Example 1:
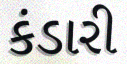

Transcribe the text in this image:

કંડારી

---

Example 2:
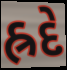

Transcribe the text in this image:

હ્રદે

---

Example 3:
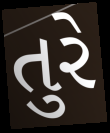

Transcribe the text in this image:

તુરે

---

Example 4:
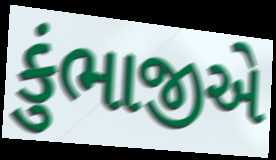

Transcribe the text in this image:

કુંભાજીએ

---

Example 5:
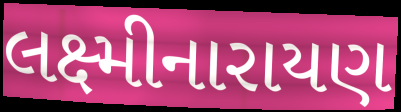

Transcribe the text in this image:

લક્ષ્મીનારાયણ